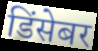
डिंसेबर